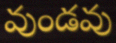
వుండవు